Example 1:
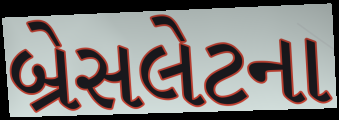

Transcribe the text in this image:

બ્રેસલેટના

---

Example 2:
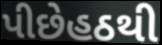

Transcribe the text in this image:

પીછેહઠથી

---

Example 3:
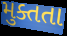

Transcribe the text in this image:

મુક્તતા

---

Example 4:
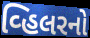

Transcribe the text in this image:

વ્હિલરનો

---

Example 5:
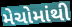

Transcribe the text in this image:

મેચોમાંથી